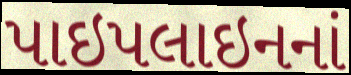
પાઇપલાઇનનાં